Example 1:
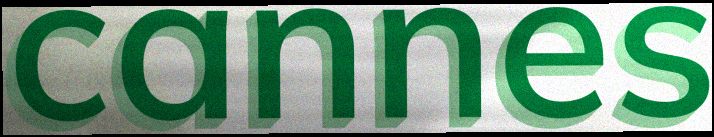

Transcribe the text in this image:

cannes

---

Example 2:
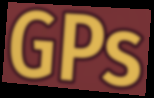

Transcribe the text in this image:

GPs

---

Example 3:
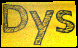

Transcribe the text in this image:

Dys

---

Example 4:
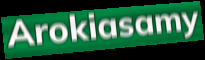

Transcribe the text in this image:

Arokiasamy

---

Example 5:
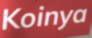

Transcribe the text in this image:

Koinya